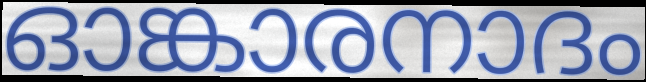
ഓങ്കാരനാദം